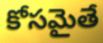
కోసమైతే